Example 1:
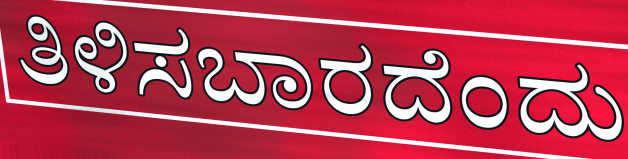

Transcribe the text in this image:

ತಿಳಿಸಬಾರದೆಂದು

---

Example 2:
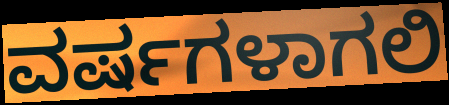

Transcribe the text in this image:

ವರ್ಷಗಳಾಗಲಿ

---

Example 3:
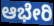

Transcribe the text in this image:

ಆಭೇರಿ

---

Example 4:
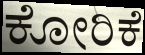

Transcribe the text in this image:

ಕೋರಿಕೆ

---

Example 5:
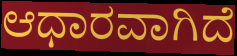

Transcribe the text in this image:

ಆಧಾರವಾಗಿದೆ